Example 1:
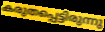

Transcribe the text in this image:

കരുതപ്പെട്ടിരുന്നു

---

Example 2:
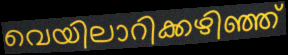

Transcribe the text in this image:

വെയിലാറിക്കഴിഞ്ഞ്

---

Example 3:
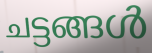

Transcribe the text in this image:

ചട്ടങ്ങൾ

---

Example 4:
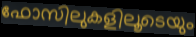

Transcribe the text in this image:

ഫോസിലുകളിലൂടെയും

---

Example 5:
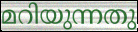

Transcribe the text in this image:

മറിയുന്നതു